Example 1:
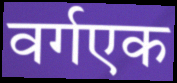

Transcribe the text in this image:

वर्गएक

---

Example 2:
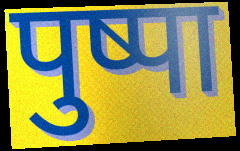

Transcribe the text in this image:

पुष्पा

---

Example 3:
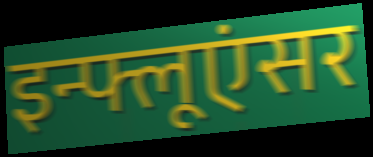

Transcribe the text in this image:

इन्फ्लूएंसर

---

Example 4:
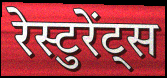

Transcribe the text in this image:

रेस्टुरेंट्स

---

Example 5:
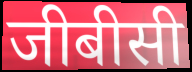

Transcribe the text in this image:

जीबीसी